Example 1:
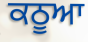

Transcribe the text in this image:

ਕਠੂਆ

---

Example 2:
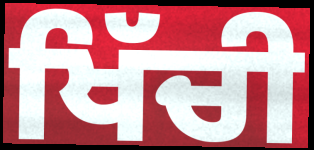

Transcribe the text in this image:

ਖਿੱਚੀ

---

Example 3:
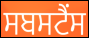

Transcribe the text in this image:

ਸਬਸਟੈਂਸ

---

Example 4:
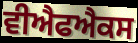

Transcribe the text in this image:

ਵੀਐਫਐਕਸ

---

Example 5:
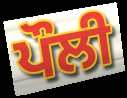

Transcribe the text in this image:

ਪੌਲੀ